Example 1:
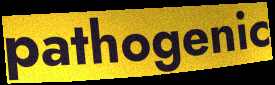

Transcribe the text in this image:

pathogenic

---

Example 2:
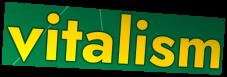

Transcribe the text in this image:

vitalism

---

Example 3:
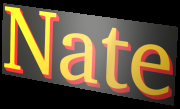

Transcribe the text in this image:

Nate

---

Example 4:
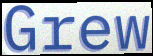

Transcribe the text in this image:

Grew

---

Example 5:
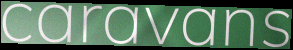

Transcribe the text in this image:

caravans